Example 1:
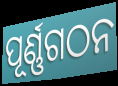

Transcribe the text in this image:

ପୂର୍ଣ୍ଣଗଠନ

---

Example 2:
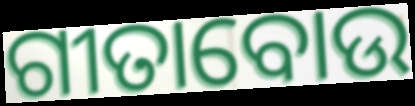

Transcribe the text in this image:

ଗୀତାବୋଉ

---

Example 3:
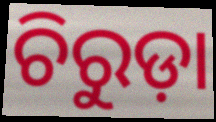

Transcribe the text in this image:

ଚିରୁଡ଼ା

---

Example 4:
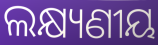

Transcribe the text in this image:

ଲକ୍ଷ୍ୟଣୀୟ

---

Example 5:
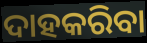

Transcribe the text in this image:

ଦାହକରିବା